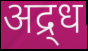
अद्र्ध